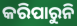
କରିପାରୁନି